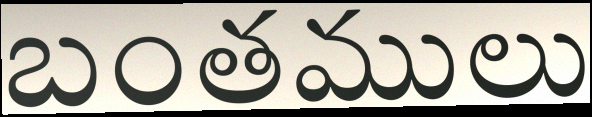
బంతములు